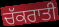
ਚੱਕਰਾਤੀ